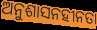
ଅନୁଶାସନହୀନତା